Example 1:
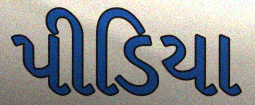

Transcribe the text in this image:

પીડિયા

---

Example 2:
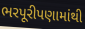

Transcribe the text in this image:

ભરપૂરીપણામાંથી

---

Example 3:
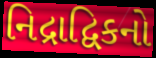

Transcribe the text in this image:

નિદ્રાદ્વિકનો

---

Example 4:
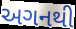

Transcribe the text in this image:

અગનથી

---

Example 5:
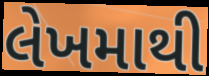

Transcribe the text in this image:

લેખમાથી